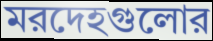
মরদেহগুলোর